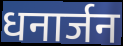
धनार्जन